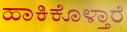
ಹಾಕಿಕೊಳ್ತಾರೆ